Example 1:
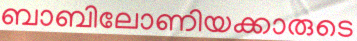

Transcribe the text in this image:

ബാബിലോണിയക്കാരുടെ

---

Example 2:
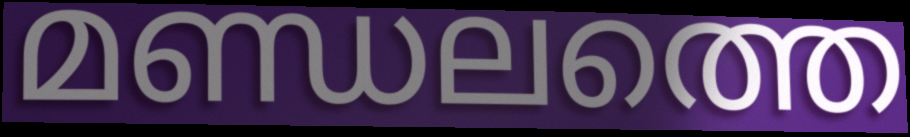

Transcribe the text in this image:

മണ്ഡലത്തെ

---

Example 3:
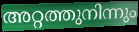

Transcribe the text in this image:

അറ്റത്തുനിന്നും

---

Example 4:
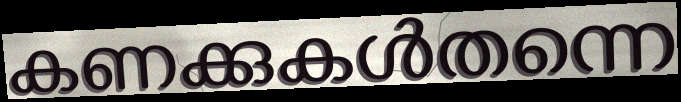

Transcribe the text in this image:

കണക്കുകൾതന്നെ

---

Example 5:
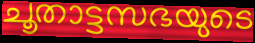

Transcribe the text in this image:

ചൂതാട്ടസഭയുടെ